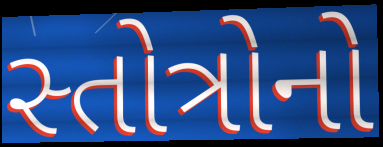
સ્તોત્રોનો